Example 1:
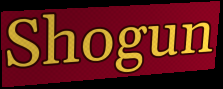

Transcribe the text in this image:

Shogun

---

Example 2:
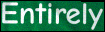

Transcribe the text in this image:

Entirely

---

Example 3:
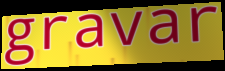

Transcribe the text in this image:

gravar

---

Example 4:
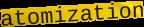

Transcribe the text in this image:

atomization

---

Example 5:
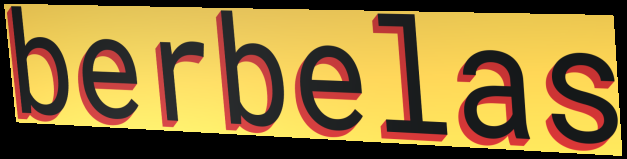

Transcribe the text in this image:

berbelas